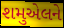
શમુએલને